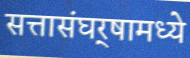
सत्तासंघर्षामध्ये